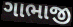
ગાભાજી